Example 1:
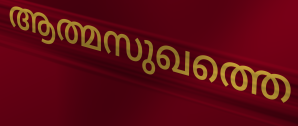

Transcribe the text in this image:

ആത്മസുഖത്തെ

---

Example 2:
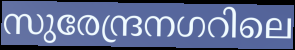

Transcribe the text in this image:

സുരേന്ദ്രനഗറിലെ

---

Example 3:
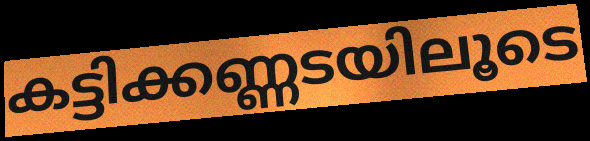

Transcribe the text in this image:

കട്ടിക്കണ്ണടയിലൂടെ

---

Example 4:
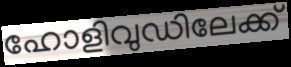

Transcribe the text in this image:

ഹോളിവുഡിലേക്ക്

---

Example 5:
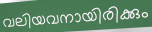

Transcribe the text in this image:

വലിയവനായിരിക്കും